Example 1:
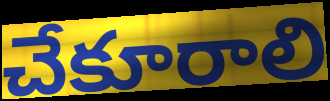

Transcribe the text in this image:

చేకూరాలి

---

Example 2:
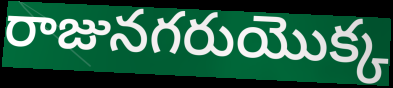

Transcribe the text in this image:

రాజునగరుయొక్క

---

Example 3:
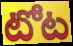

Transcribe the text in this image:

టోట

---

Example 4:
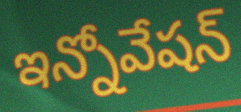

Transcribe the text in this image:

ఇన్నోవేషన్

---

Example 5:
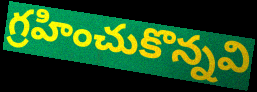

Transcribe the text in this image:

గ్రహించుకొన్నవి